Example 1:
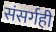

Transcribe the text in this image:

संसर्गही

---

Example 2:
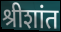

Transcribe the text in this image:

श्रीशांत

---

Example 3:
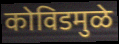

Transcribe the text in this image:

कोविडमुळे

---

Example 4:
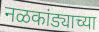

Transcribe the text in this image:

नळकांड्याच्या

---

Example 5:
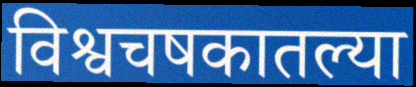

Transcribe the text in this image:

विश्वचषकातल्या